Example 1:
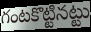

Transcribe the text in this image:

గంటకొట్టినట్టు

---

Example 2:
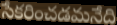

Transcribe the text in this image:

సేకరించడమనేది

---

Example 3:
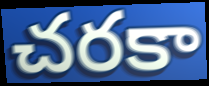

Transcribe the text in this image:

చరకా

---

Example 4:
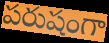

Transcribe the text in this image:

పరుషంగా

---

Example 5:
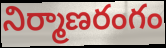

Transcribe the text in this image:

నిర్మాణరంగం